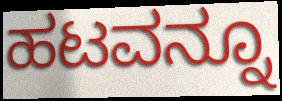
ಹಟವನ್ನೂ